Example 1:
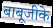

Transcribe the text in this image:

बाबूजीके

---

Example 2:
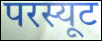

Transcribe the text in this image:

परस्यूट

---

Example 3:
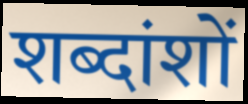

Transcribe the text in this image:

शब्दांशों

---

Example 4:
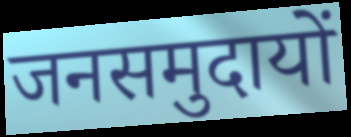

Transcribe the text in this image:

जनसमुदायों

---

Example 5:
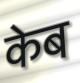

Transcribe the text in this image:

केब